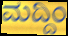
ಮದ್ದಿಂ